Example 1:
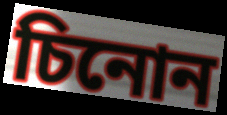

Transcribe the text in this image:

চিনোন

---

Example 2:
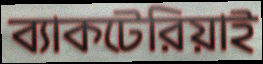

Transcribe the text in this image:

ব্যাকটেরিয়াই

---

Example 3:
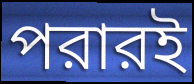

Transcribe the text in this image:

পরারই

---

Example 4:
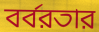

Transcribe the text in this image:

বর্বরতার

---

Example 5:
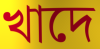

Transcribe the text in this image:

খাদে